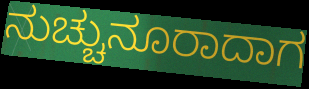
ನುಚ್ಚುನೂರಾದಾಗ